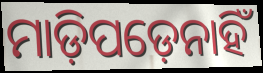
ମାଡ଼ିପଡ଼େନାହିଁ